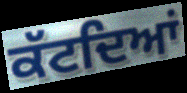
ਕੱਟਦਿਆਂ